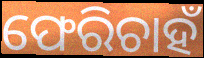
ଫେରିଚାହଁ